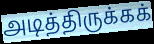
அடித்திருக்கக்